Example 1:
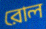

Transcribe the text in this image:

রোল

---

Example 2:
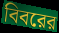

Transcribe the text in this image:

বিবরের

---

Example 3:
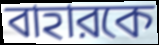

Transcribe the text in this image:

বাহারকে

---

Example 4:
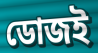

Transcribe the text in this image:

ডোজই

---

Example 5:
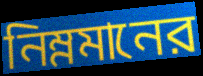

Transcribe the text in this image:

নিম্নমানের